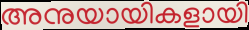
അനുയായികളായി